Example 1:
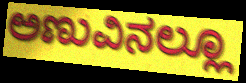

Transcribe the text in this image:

ಅಣುವಿನಲ್ಲೂ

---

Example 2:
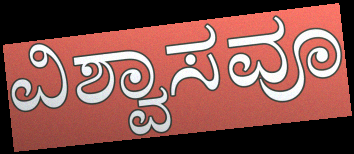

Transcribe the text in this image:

ವಿಶ್ವಾಸವೂ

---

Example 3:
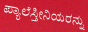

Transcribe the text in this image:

ಪ್ಯಾಲೆಸ್ತೀನಿಯರನ್ನು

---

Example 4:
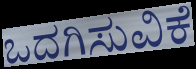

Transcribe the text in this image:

ಒದಗಿಸುವಿಕೆ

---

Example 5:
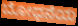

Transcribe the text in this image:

ಬೋಧನೆಯ